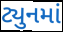
ટ્યુનમાં